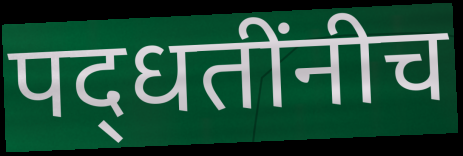
पद्धतींनीच